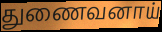
துணைவனாய்